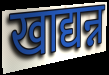
खाद्यन्न